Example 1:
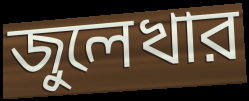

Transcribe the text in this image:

জুলেখার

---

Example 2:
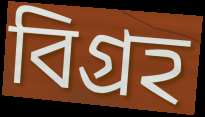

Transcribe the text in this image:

বিগ্রহ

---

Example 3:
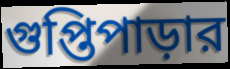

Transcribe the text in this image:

গুপ্তিপাড়ার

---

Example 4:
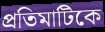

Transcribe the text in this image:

প্রতিমাটিকে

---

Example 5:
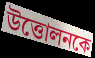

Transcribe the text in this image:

উত্তোলনকে